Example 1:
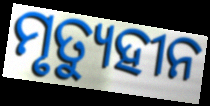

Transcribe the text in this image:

ମୃତ୍ୟୁହୀନ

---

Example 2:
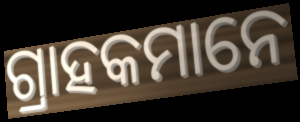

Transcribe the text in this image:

ଗ୍ରାହକମାନେ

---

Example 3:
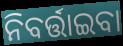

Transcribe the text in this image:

ନିବର୍ତ୍ତାଇବା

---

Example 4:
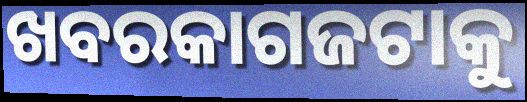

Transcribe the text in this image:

ଖବରକାଗଜଟାକୁ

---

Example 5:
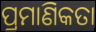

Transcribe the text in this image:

ପ୍ରମାଣିକତା